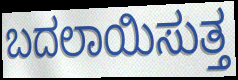
ಬದಲಾಯಿಸುತ್ತ